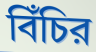
বিঁচির